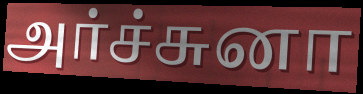
அர்ச்சுனா